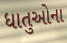
ધાતુઓના